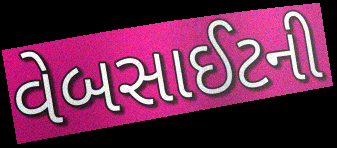
વેબસાઈટની